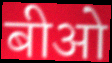
बीओ